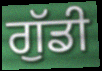
ਗੁੱਡੀ